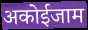
अकोईजाम